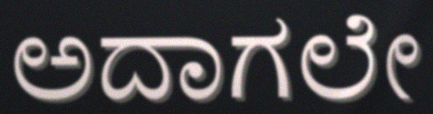
ಅದಾಗಲೇ